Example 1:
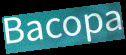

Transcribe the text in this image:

Bacopa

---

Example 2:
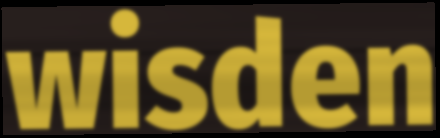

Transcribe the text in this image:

wisden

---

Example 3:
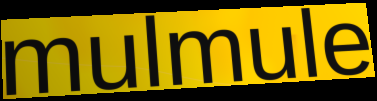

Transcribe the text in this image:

mulmule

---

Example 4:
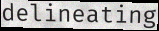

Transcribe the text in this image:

delineating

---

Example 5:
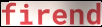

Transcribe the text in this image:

firend